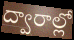
ద్వారాల్లో